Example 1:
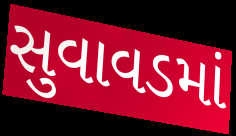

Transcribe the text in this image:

સુવાવડમાં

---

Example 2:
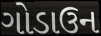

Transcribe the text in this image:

ગોડાઉન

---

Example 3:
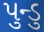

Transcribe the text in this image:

પુન્ડુ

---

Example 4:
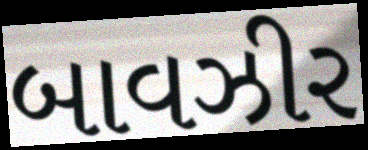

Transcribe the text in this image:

બાવઝીર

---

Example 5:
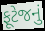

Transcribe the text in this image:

ફૂટેજનું